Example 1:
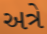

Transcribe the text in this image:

અત્રે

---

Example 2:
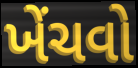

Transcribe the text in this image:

ખેંચવો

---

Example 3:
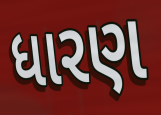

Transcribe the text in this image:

ધારણ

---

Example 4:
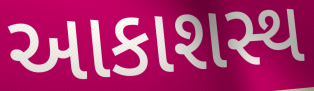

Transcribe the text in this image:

આકાશસ્થ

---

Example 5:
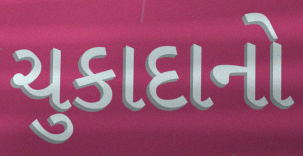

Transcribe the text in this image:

ચુકાદાનો